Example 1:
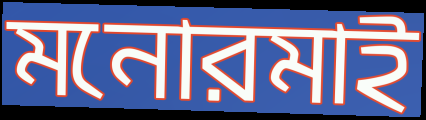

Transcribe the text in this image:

মনোরমাই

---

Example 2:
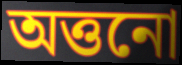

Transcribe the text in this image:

অত্তনো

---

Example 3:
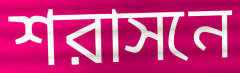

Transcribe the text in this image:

শরাসনে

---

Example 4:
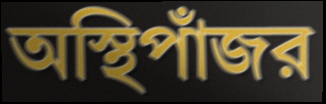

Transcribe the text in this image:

অস্থিপাঁজর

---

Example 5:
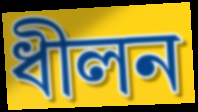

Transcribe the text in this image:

ধীলন